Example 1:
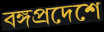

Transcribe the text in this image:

বঙ্গপ্রদেশে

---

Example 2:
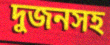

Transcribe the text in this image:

দুজনসহ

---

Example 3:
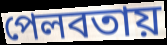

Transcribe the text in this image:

পেলবতায়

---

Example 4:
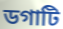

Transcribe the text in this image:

ডগাটি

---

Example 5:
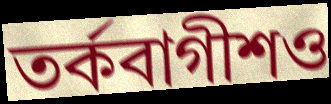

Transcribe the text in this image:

তর্কবাগীশও